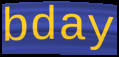
bday